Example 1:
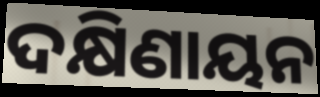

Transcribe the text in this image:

ଦକ୍ଷିଣାୟନ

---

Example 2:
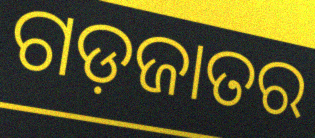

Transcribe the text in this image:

ଗଡ଼ଜାତର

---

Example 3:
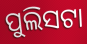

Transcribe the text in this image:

ପୁଲିସଟା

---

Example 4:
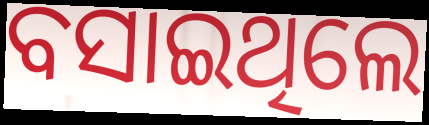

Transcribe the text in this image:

ବସାଇଥିଲେ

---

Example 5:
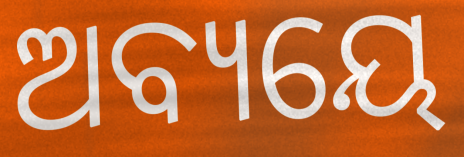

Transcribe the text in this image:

ଅବ୍ୟୟେ